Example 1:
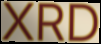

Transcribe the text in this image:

XRD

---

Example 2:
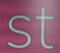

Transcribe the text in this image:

st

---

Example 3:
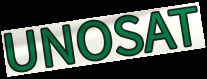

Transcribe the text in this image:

UNOSAT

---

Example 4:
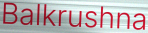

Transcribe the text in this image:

Balkrushna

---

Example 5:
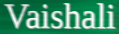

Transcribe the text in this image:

Vaishali